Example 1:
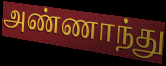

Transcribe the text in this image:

அண்ணாந்து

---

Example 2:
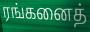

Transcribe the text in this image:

ரங்கனைத்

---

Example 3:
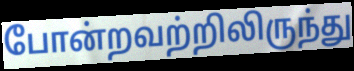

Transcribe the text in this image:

போன்றவற்றிலிருந்து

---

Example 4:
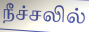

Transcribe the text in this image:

நீச்சலில்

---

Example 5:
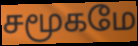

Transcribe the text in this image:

சமூகமே